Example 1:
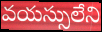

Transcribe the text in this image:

వయస్సులేని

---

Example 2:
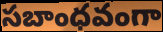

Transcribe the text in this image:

సబాంధవంగా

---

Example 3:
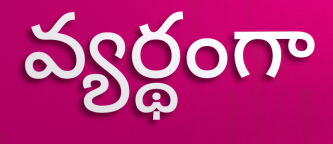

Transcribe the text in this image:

వ్యర్థంగా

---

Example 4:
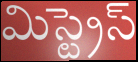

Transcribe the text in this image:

మిస్ట్రెస్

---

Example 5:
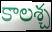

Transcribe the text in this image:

కాలశ్చ